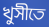
খুসীতে